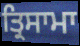
ਤ੍ਰਿਸਾਮਾ